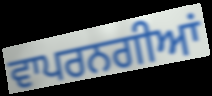
ਵਾਪਰਨਗੀਆਂ